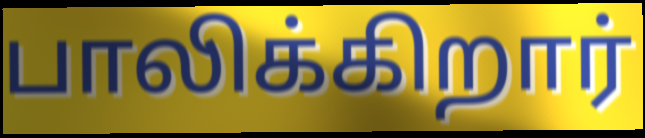
பாலிக்கிறார்